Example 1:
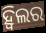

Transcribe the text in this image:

ହ୍ଵିଲର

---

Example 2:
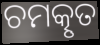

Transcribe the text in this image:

ଚମତ୍କୃତ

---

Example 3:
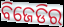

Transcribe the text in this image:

ବିଜେଡିର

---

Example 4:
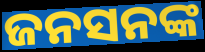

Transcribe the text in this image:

ଜନସନଙ୍କ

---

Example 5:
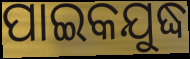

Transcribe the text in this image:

ପାଇକଯୁଦ୍ଧ